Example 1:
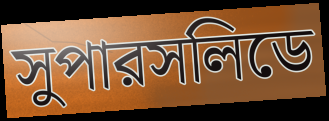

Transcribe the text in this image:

সুপারসলিডে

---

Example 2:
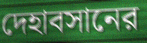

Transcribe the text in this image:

দেহাবসানের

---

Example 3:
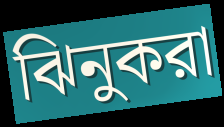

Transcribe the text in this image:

ঝিনুকরা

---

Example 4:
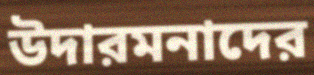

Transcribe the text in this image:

উদারমনাদের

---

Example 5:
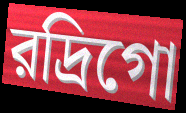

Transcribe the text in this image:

রদ্রিগো